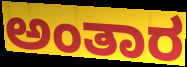
ಅಂತಾರ